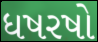
ધષરષો